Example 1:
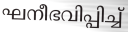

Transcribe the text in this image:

ഘനീഭവിപ്പിച്ച്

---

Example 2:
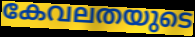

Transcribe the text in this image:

കേവലതയുടെ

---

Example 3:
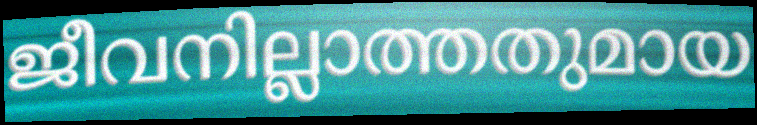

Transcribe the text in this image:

ജീവനില്ലാത്തതുമായ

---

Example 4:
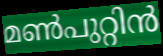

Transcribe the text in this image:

മൺപുറ്റിൻ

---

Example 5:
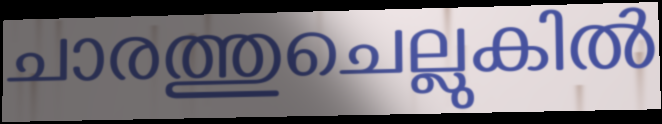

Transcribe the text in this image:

ചാരത്തുചെല്ലുകിൽ